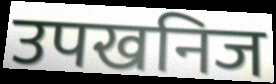
उपखनिज